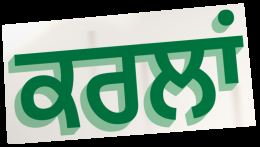
ਕਰਲਾਂ